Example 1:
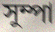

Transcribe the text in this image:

সুম্পা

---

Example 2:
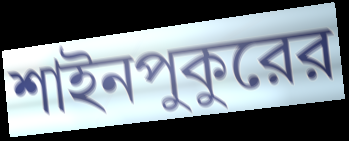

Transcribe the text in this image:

শাইনপুকুরের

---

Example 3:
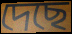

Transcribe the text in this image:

দেছে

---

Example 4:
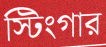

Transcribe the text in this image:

স্টিংগার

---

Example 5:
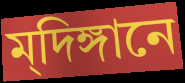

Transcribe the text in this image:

ম্‌দিঙ্গানে